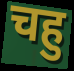
चहु